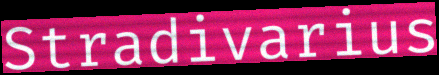
Stradivarius